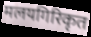
मलयगिरिकृत